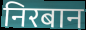
निरबान